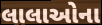
લાલાઓના